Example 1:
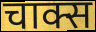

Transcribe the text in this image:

चाक्स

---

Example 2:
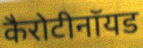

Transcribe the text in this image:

कैरोटीनॉयड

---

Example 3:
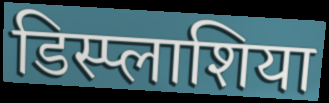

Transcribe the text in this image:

डिस्प्लाशिया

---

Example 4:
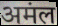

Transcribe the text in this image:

अमंल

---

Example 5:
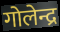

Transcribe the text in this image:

गोलेन्द्र